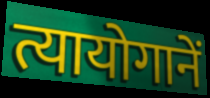
त्यायोगानें